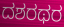
ದಶರಥರ